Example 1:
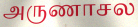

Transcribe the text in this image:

அருணாசல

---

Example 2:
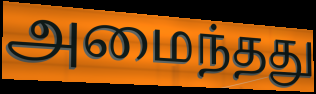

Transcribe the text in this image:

அமைந்தது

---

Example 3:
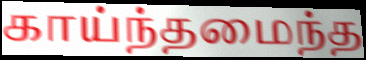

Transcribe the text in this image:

காய்ந்தமைந்த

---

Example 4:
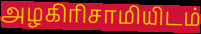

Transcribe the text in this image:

அழகிரிசாமியிடம்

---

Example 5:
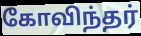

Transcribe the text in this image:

கோவிந்தர்